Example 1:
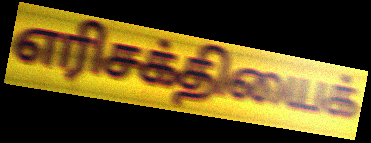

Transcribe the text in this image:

எரிசக்தியைக்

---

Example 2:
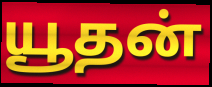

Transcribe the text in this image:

யூதன்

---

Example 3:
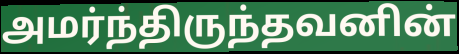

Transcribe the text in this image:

அமர்ந்திருந்தவனின்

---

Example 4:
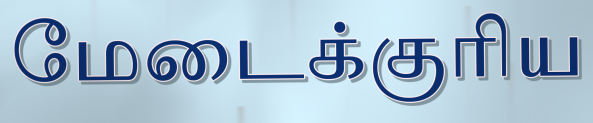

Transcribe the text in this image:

மேடைக்குரிய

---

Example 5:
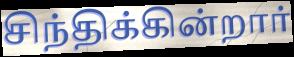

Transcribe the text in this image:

சிந்திக்கின்றார்